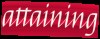
attaining